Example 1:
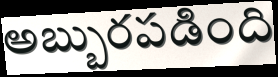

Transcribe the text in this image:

అబ్బురపడింది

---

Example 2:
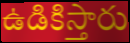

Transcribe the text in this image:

ఉడికిస్తారు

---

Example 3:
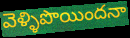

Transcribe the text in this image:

వెళ్ళిపొయిందనా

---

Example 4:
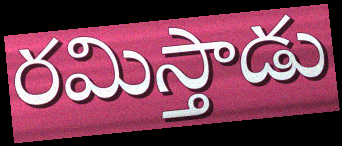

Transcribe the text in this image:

రమిస్తాడు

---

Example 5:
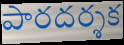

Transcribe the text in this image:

పారదర్శక